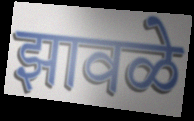
झावळे